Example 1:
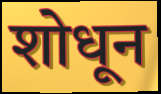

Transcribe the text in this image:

शोधून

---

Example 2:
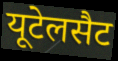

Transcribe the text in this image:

यूटेलसैट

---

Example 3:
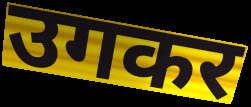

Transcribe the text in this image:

उगकर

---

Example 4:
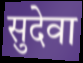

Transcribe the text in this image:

सुदेवा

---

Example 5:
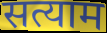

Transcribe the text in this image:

सत्याम